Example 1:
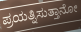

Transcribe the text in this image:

ಪ್ರಯತ್ನಿಸುತ್ತಾನೋ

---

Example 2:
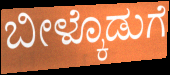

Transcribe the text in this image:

ಬೀಳ್ಕೊಡುಗೆ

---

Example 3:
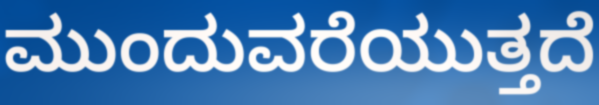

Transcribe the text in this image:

ಮುಂದುವರೆಯುತ್ತದೆ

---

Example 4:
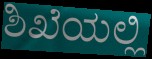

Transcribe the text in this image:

ಶಿಖೆಯಲ್ಲಿ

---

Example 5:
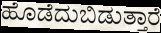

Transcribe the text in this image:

ಹೊಡೆದುಬಿಡುತ್ತಾರೆ